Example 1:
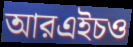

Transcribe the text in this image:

আরএইচও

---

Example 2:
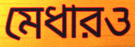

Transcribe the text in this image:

মেধারও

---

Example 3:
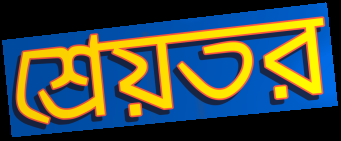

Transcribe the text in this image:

শ্রেয়তর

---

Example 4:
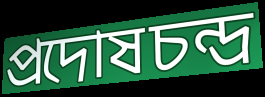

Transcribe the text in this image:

প্রদোষচন্দ্র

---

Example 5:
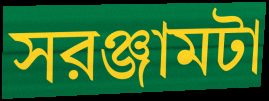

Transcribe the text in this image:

সরঞ্জামটা